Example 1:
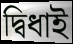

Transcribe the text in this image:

দ্বিধাই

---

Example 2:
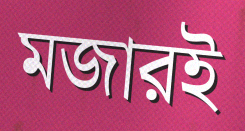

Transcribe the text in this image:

মজারই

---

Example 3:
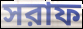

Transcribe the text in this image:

সরাফ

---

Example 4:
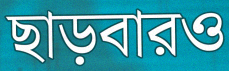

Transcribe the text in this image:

ছাড়বারও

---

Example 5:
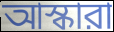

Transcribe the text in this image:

আস্কারা